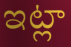
ఇట్లా